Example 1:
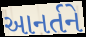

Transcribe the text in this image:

આનર્તને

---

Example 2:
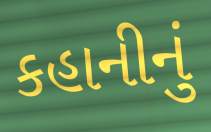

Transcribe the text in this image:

કહાનીનું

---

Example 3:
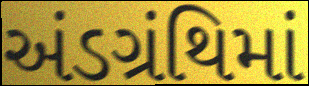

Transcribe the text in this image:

અંડગ્રંથિમાં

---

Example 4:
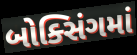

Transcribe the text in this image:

બોક્સિંગમાં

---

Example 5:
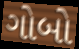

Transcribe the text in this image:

ગોબો